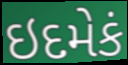
ઇદમેકં